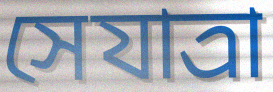
সেযাত্রা